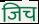
जिच